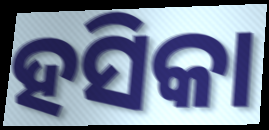
ହସିକା